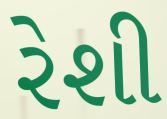
રેશી